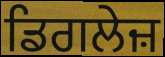
ਡਿਗਲੇਜ਼